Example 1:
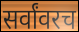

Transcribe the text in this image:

सर्वांवरच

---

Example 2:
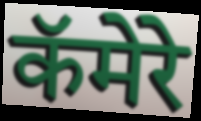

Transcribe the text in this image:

कॅमेरे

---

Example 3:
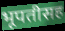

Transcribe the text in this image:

भूपतीसह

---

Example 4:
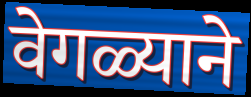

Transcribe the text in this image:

वेगळ्याने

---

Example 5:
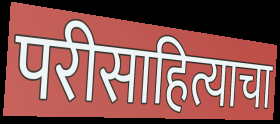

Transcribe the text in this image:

परीसाहित्याचा